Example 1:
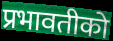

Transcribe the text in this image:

प्रभावतीको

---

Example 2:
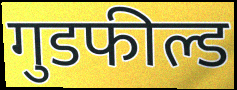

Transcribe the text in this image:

गुडफील्ड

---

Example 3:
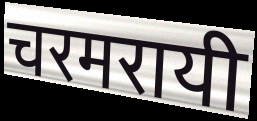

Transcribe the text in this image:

चरमरायी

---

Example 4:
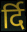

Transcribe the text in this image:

र्दि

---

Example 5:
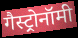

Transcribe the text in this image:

गैस्ट्रोनॉमी